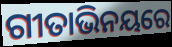
ଗୀତାଭିନୟରେ